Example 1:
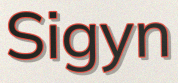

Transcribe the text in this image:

Sigyn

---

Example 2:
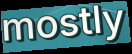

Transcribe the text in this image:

mostly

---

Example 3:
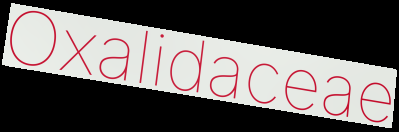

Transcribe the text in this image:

Oxalidaceae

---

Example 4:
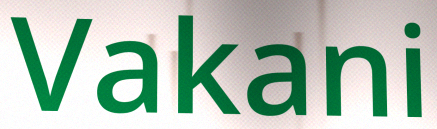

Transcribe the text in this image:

Vakani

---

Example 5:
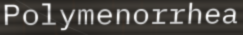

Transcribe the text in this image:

Polymenorrhea